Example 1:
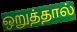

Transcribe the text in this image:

ஒறுத்தால்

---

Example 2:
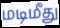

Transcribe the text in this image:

மடிமீது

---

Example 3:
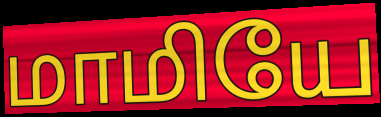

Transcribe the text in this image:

மாமியே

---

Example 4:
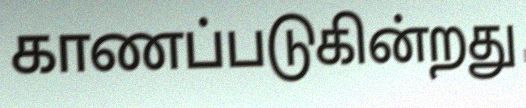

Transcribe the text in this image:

காணப்படுகின்றது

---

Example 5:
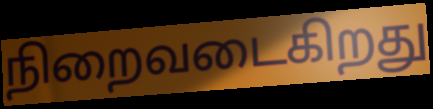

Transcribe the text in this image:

நிறைவடைகிறது